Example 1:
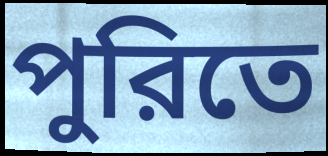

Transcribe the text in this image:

পুরিতে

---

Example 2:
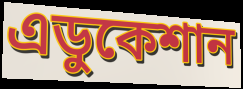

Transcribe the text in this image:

এডুকেশান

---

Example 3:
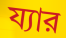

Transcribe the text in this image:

য্যার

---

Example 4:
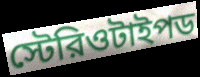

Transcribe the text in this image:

স্টেরিওটাইপড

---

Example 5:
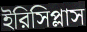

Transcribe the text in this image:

ইরিসিপ্লাস